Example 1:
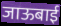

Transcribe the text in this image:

जाऊबाई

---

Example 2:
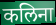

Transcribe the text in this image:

कलिना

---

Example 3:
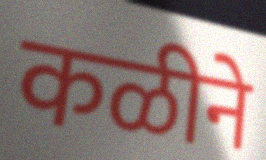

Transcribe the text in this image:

कळीने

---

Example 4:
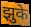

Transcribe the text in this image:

झुके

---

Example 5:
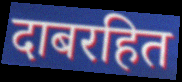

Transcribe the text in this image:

दाबरहित